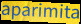
aparimita